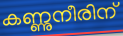
കണ്ണുനീരിന്